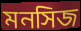
মনসিজ